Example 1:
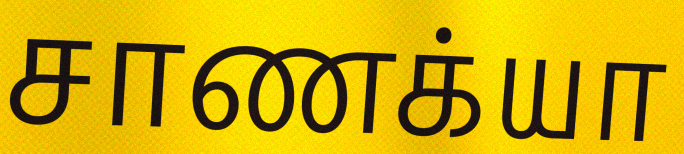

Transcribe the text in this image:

சாணக்யா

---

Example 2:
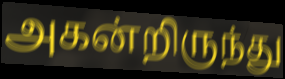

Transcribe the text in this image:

அகன்றிருந்து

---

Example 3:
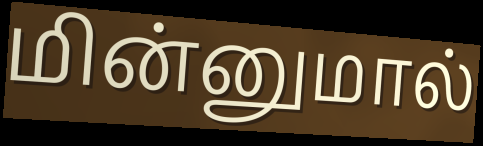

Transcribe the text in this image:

மின்னுமால்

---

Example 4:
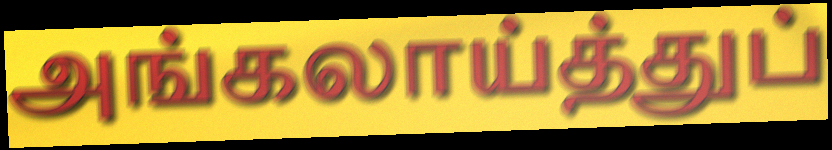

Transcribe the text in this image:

அங்கலாய்த்துப்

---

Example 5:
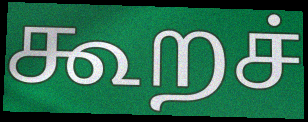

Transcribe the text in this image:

கூறச்